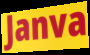
Janva